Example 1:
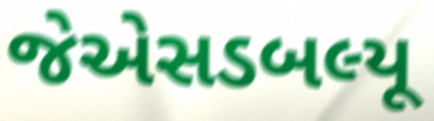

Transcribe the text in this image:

જેએસડબલ્યૂ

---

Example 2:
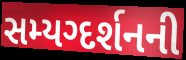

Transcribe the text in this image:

સમ્યગ્દર્શનની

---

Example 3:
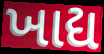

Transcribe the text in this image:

ખાદ્ય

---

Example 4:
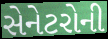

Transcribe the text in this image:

સેનેટરોની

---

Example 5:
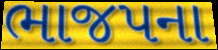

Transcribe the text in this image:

ભાજપના